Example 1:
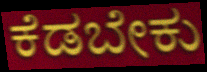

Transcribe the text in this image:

ಕೆಡಬೇಕು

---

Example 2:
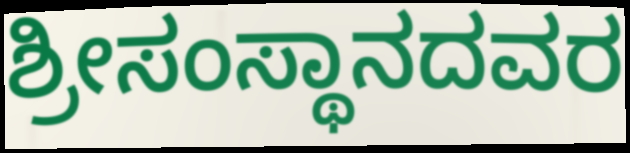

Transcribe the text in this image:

ಶ್ರೀಸಂಸ್ಥಾನದವರ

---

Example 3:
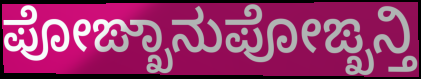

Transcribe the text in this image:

ಪೋಙ್ಖಾನುಪೋಙ್ಖನ್ತಿ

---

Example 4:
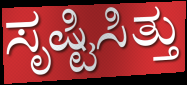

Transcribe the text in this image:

ಸೃಷ್ಟಿಸಿತ್ತು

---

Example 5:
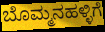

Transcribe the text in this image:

ಬೊಮ್ಮನಹಳ್ಳಿಗೆ